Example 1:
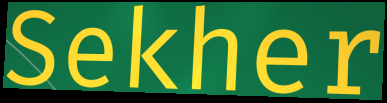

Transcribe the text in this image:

Sekher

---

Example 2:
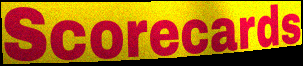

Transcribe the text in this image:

Scorecards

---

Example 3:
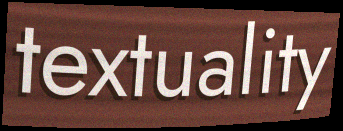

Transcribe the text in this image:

textuality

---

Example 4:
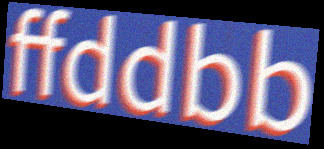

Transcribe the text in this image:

ffddbb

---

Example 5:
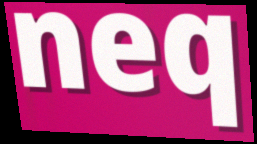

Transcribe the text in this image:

neq